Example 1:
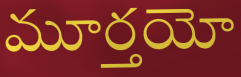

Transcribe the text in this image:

మూర్తయో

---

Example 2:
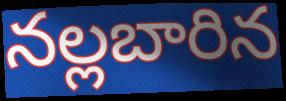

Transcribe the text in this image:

నల్లబారిన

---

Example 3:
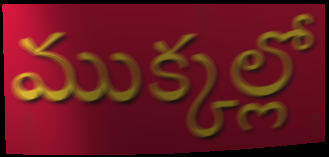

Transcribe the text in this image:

ముక్కల్లో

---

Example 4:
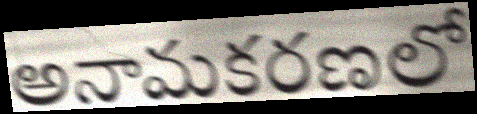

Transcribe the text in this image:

అనామకరణలో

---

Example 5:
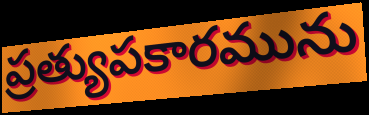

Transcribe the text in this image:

ప్రత్యుపకారమును